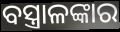
ବସ୍ତ୍ରାଳଙ୍କାର